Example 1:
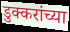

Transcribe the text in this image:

डुक्करांच्या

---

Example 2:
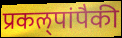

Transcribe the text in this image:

प्रकल्पांपैकी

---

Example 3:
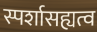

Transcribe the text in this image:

स्पर्शासह्यत्व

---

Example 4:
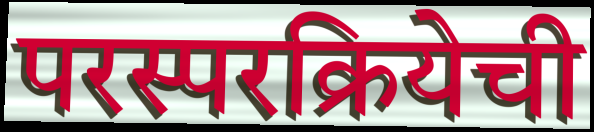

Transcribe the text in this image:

परस्परक्रियेची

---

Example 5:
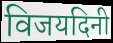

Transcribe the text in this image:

विजयदिनी